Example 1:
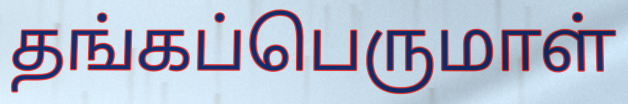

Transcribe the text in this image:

தங்கப்பெருமாள்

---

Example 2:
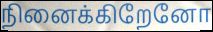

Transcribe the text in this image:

நினைக்கிறேனோ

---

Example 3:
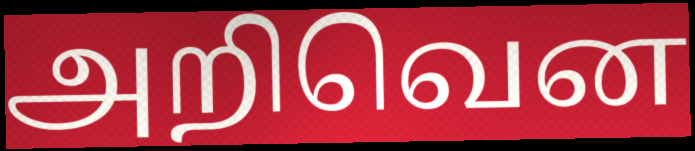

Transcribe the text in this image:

அறிவென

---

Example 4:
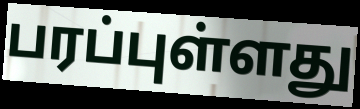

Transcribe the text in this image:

பரப்புள்ளது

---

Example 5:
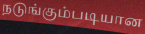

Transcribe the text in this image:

நடுங்கும்படியான